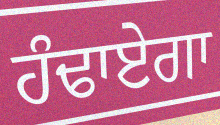
ਹੰਢਾਏਗਾ